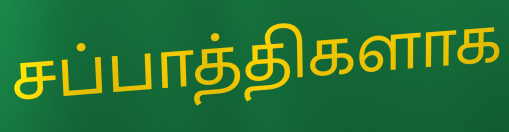
சப்பாத்திகளாக